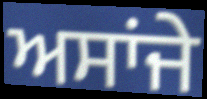
ਅਸਾਂਜੇ